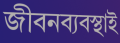
জীবনব্যবস্থাই